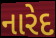
નારેદ